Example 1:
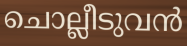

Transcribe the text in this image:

ചൊല്ലീടുവൻ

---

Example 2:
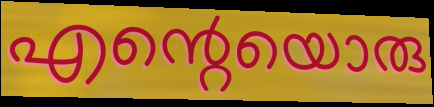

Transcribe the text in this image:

എന്റെയൊരു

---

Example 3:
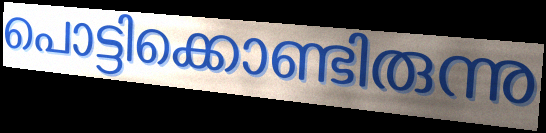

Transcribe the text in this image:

പൊട്ടിക്കൊണ്ടിരുന്നു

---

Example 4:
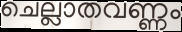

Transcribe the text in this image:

ചെല്ലാതവണ്ണം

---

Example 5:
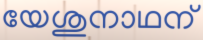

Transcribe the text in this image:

യേശുനാഥന്